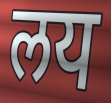
लय